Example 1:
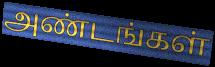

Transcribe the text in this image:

அண்டங்கள்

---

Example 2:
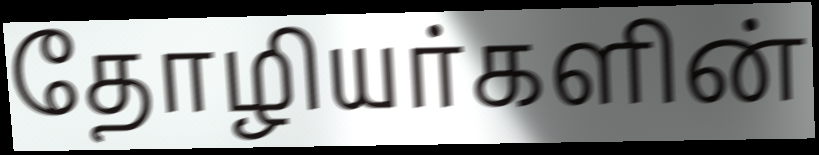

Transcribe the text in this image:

தோழியர்களின்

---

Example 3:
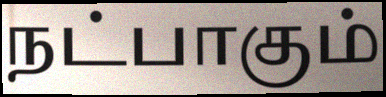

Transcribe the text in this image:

நட்பாகும்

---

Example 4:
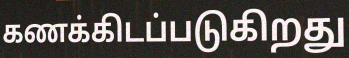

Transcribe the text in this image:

கணக்கிடப்படுகிறது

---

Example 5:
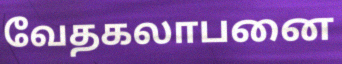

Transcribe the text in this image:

வேதகலாபனை